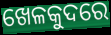
ଖେଳକୁଦରେ